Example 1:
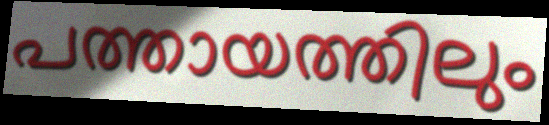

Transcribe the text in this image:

പത്തായത്തിലും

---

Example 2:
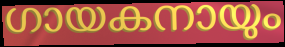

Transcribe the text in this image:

ഗായകനായും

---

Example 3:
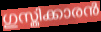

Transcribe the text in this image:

ഗുസ്തിക്കാരൻ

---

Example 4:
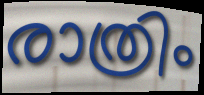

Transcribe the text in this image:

രാത്രിം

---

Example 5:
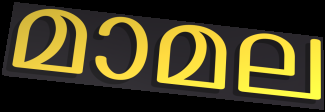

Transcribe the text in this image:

മാമല